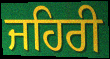
ਜਹਿਰੀ